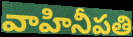
వాహినీపతి